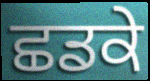
ਛਡਕੇ